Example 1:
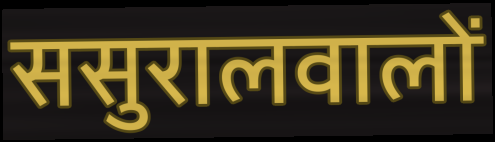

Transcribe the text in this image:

ससुरालवालों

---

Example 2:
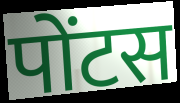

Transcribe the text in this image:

पोंटस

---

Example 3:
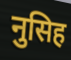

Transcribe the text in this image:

नुसिह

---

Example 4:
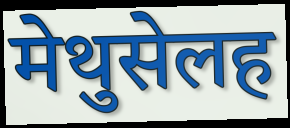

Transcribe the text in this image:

मेथुसेलह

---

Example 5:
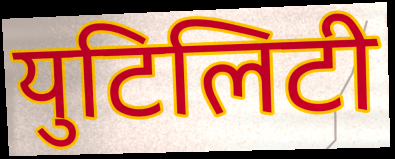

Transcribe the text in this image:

युटिलिटी